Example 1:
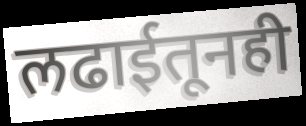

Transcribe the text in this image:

लढाईतूनही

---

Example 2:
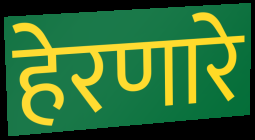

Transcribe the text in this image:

हेरणारे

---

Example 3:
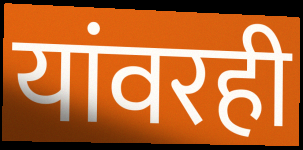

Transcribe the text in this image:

यांवरही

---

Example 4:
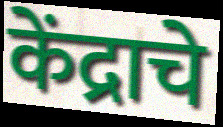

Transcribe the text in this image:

केंद्राचे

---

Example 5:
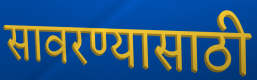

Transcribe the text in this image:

सावरण्यासाठी